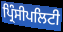
ਪ੍ਰਿੰਸੀਪਲਿਟੀ